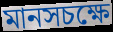
মানসচক্ষে